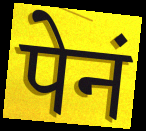
पेनं